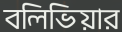
বলিভিয়ার